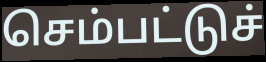
செம்பட்டுச்